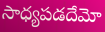
సాధ్యపడదేమో